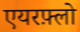
एयरफ़्लो